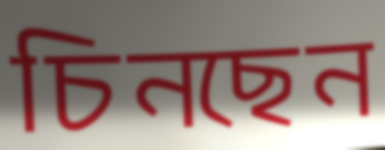
চিনছেন